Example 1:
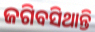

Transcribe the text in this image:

ଜଗିବସିଥାନ୍ତି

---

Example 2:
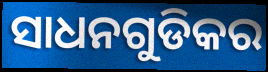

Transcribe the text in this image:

ସାଧନଗୁଡିକର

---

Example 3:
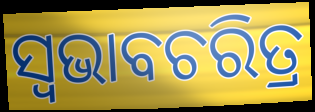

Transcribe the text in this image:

ସ୍ବଭାବଚରିତ୍ର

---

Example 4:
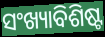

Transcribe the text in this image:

ସଂଖ୍ୟାବିଶିଷ୍ଟ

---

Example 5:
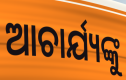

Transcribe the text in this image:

ଆଚାର୍ଯ୍ୟଙ୍କୁ